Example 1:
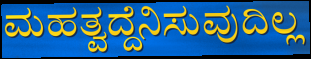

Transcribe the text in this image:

ಮಹತ್ವದ್ದೆನಿಸುವುದಿಲ್ಲ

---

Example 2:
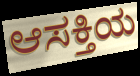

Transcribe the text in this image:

ಆಸಕ್ತಿಯ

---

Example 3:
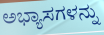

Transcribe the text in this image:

ಅಭ್ಯಾಸಗಳನ್ನು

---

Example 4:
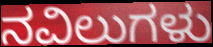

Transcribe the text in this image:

ನವಿಲುಗಳು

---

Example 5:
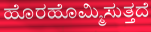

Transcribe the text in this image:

ಹೊರಹೊಮ್ಮಿಸುತ್ತದೆ